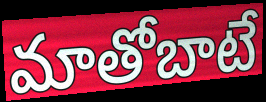
మాతోబాటే